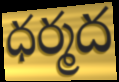
ధర్మద